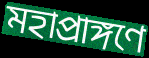
মহাপ্রাঙ্গণে